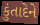
કુંતાદેને